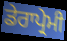
ਡੇਰਾਪ੍ਰੇਮੀ